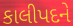
કાલીપદને